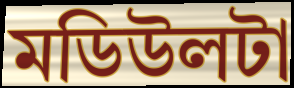
মডিউলটা